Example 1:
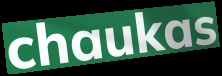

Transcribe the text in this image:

chaukas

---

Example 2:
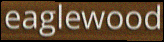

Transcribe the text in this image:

eaglewood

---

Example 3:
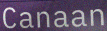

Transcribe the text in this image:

Canaan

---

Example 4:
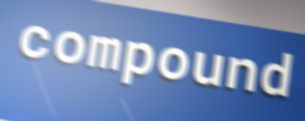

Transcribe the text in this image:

compound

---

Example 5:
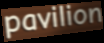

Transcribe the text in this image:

pavilion